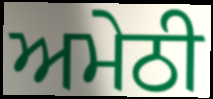
ਅਮੇਠੀ